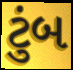
ટુંબ